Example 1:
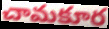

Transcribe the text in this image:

చామకూర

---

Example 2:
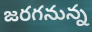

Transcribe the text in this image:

జరగనున్న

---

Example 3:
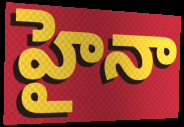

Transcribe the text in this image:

హైనా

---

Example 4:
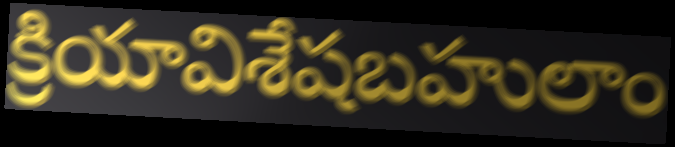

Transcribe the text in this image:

క్రియావిశేషబహులాం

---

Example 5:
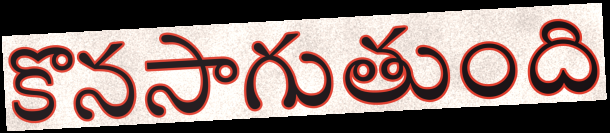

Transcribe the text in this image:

కొనసాగుతుంది